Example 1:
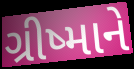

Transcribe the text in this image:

ગ્રીષ્માને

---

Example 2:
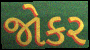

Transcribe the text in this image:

જોકર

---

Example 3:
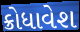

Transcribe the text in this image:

ક્રોધાવેશ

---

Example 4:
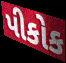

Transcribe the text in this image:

પીકોક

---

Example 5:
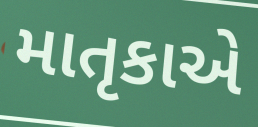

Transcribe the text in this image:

માતૃકાએ